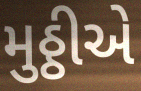
મુઠ્ઠીએ